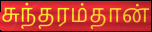
சுந்தரம்தான்